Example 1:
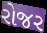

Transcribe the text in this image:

રોજર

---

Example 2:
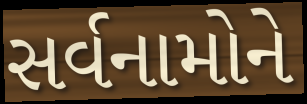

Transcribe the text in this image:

સર્વનામોને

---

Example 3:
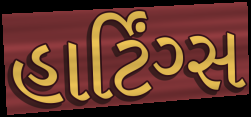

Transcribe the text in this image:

હાર્ટિંગ્સ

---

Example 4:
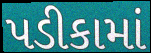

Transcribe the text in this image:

પડીકામાં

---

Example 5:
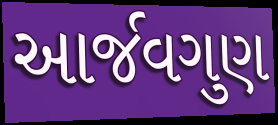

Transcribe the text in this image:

આર્જવગુણ